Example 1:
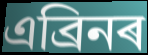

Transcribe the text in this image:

এব্ৰিনৰ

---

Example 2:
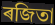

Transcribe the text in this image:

ৰজিতা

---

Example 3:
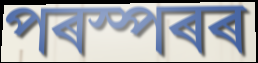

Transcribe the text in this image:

পৰস্পৰৰ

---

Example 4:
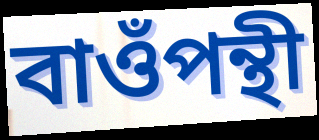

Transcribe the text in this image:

বাওঁপন্থী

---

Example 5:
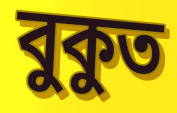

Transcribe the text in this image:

বুকুত